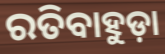
ରତିବାହୁଡ଼ା